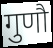
गुणौ